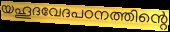
യഹൂദവേദപഠനത്തിന്റെ